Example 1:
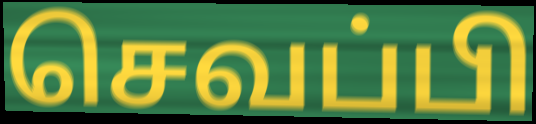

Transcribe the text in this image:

செவப்பி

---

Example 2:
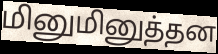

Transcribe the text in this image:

மினுமினுத்தன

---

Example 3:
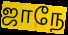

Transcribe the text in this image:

ஜாநே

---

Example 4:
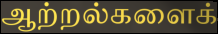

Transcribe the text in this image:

ஆற்றல்களைக்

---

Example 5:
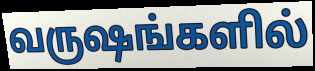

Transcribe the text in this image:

வருஷங்களில்